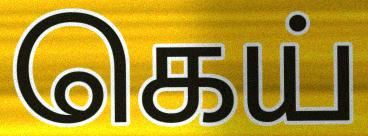
கெய்